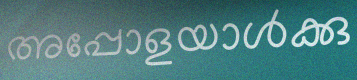
അപ്പോളയാൾക്കു